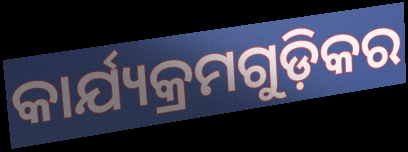
କାର୍ଯ୍ୟକ୍ରମଗୁଡ଼ିକର